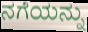
ನಗೆಯನ್ನು